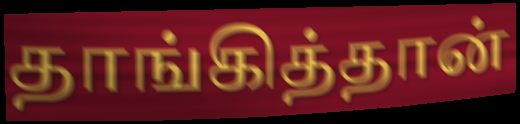
தாங்கித்தான்